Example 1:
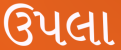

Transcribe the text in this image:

ઉપલા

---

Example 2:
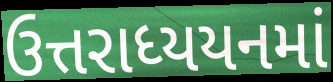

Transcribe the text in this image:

ઉત્તરાધ્યયનમાં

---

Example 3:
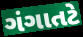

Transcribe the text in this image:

ગંગાતટે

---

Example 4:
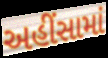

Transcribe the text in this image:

અહીંસામાં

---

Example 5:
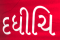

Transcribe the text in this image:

દધીચિ